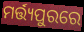
ମର୍ତ୍ତ୍ୟପୁରରେ